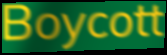
Boycott